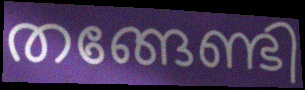
തങ്ങേണ്ടി